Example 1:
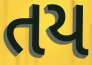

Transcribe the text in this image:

તય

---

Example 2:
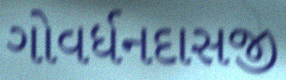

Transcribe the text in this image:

ગોવર્ધનદાસજી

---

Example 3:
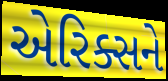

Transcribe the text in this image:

એરિક્સને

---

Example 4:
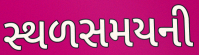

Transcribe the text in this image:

સ્થળસમયની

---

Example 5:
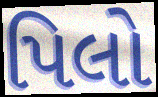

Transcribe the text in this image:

પિલો